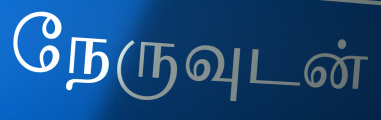
நேருவுடன்